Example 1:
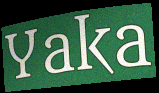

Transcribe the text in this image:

Yaka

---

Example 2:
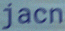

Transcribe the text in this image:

jacn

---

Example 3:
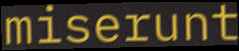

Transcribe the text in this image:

miserunt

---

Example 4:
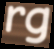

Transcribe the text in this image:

rg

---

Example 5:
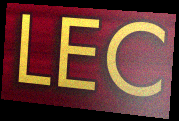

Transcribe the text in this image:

LEC